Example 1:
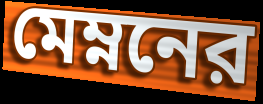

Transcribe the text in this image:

মেম্ননের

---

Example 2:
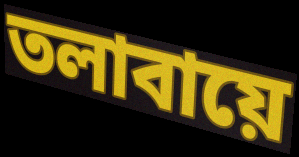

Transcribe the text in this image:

তলাবায়ে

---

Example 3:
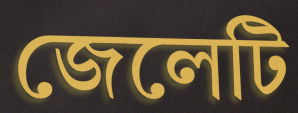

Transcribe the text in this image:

জেলেটি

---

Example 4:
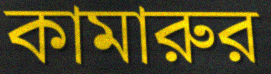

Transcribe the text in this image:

কামারুর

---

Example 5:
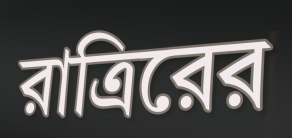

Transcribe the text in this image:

রাত্রিরের